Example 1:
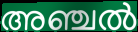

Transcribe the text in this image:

അഞ്ചൽ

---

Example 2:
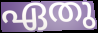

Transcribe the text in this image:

ഏതു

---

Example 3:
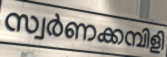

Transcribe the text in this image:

സ്വർണക്കമ്പിളി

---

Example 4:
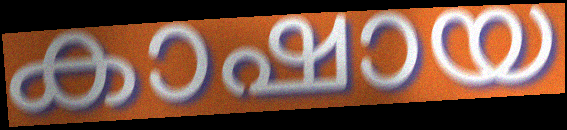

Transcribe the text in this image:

കാഷായ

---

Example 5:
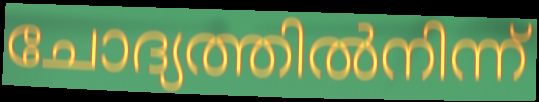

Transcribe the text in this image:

ചോദ്യത്തിൽനിന്ന്